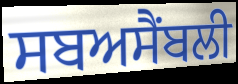
ਸਬਅਸੈਂਬਲੀ